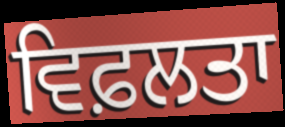
ਵਿਫ਼ਲਤਾ